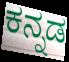
ಕನ್ನಡ